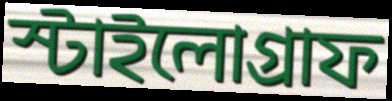
স্টাইলোগ্রাফ